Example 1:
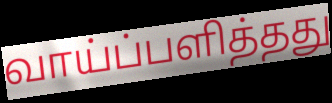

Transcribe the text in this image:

வாய்ப்பளித்தது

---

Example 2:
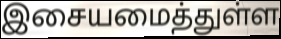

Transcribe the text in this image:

இசையமைத்துள்ள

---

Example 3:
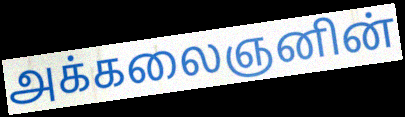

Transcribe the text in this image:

அக்கலைஞனின்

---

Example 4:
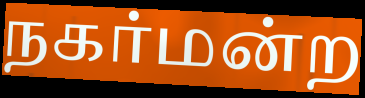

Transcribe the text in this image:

நகர்மன்ற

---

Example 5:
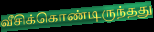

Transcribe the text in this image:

வீசிக்கொண்டிருந்தது